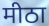
मीठा